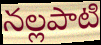
నల్లపాటి